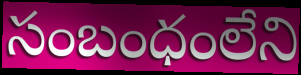
సంబంధంలేని